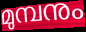
മുമ്പനും